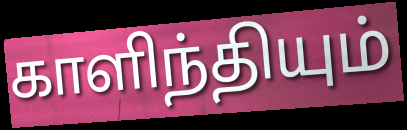
காளிந்தியும்